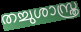
തച്ചുശാസ്ത്ര